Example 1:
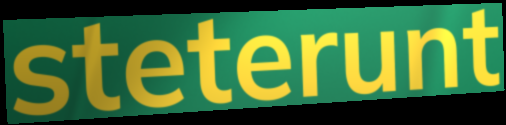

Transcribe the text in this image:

steterunt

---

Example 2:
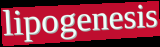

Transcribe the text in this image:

lipogenesis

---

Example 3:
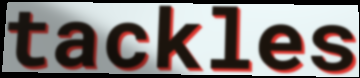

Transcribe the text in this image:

tackles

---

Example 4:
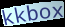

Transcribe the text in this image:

kkbox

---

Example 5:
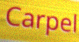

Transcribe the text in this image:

Carpel